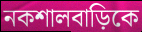
নকশালবাড়িকে